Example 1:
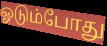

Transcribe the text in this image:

ஓடும்போது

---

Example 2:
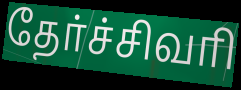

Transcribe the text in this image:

தேர்ச்சிவரி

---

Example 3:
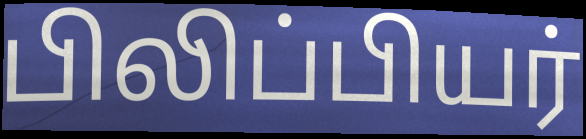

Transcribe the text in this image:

பிலிப்பியர்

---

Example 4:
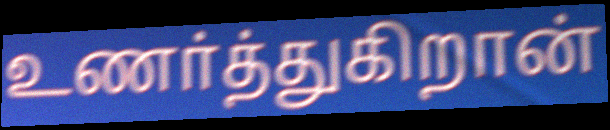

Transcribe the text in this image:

உணர்த்துகிறான்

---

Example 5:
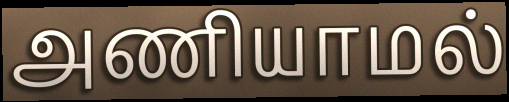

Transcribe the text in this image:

அணியாமல்